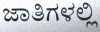
ಜಾತಿಗಳಲ್ಲಿ